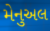
મેનુઅલ